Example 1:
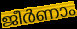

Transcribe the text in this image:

ജീർണാം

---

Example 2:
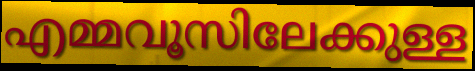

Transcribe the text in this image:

എമ്മവൂസിലേക്കുള്ള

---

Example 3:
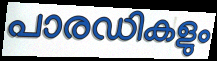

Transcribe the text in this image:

പാരഡികളും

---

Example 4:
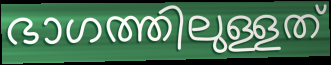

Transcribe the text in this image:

ഭാഗത്തിലുള്ളത്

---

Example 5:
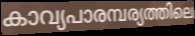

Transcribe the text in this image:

കാവ്യപാരമ്പര്യത്തിലെ